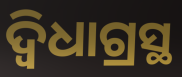
ଦ୍ବିଧାଗ୍ରସ୍ଥ